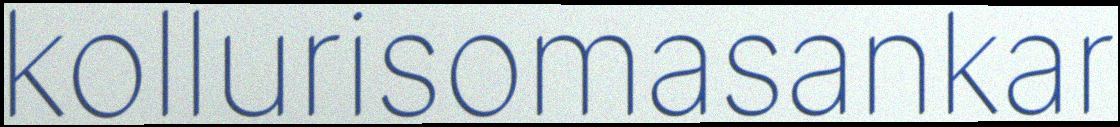
kollurisomasankar